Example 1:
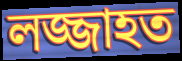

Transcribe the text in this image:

লজ্জাহত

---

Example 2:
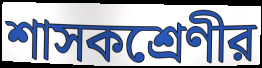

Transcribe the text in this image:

শাসকশ্রেণীর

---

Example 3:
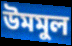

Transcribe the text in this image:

উমমুল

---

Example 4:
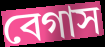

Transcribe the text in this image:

বেগাস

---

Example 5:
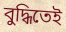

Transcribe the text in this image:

বুদ্ধিতেই